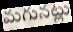
మగునట్లు